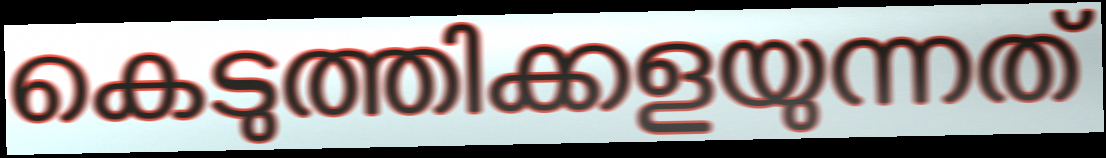
കെടുത്തിക്കളയുന്നത്